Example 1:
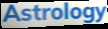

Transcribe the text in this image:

Astrology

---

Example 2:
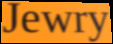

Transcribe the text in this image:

Jewry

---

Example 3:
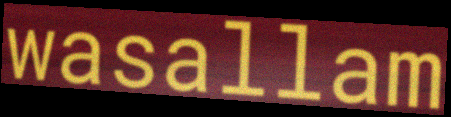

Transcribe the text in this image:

wasallam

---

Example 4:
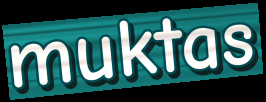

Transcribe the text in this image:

muktas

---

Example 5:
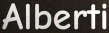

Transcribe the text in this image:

Alberti